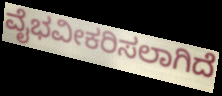
ವೈಭವೀಕರಿಸಲಾಗಿದೆ